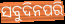
ସବୁଦିନପରି